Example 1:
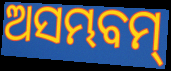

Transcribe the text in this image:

ଅସମ୍ଭବମ୍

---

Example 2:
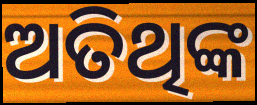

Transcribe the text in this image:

ଅତିଥିଙ୍କ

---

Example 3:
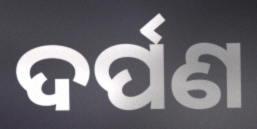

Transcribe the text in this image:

ଦର୍ପଣ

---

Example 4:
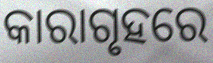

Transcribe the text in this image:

କାରାଗୃହରେ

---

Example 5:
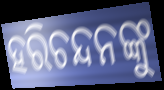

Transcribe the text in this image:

ହରିଚନ୍ଦନଙ୍କୁ